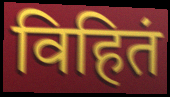
विहितं